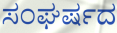
ಸಂಘರ್ಷದ